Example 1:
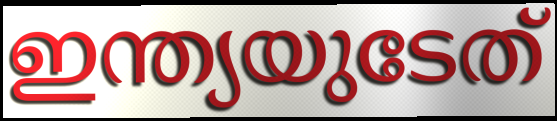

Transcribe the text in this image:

ഇന്ത്യയുടേത്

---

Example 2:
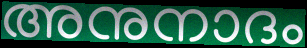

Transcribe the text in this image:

അനുനാദം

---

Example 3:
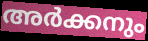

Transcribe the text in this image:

അർക്കനും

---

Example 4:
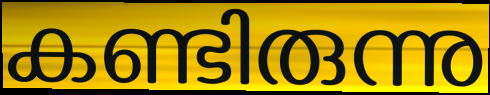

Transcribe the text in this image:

കണ്ടിരുന്നു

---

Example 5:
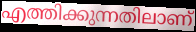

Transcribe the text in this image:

എത്തിക്കുന്നതിലാണ്